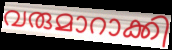
വരുമാറാക്കി